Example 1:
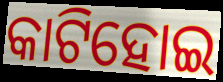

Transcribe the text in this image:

କାଟିହୋଇ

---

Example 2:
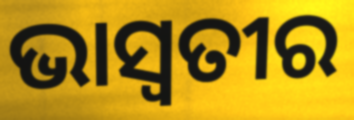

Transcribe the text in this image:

ଭାସ୍ୱତୀର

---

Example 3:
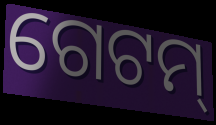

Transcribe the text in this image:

ଗେଟମ୍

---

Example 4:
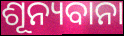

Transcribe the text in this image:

ଶୂନ୍ୟବାନା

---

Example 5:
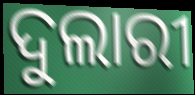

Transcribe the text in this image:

ଦୁଲାରୀ